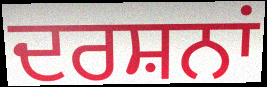
ਦਰਸ਼ਨਾਂ